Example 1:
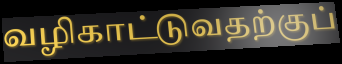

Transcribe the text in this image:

வழிகாட்டுவதற்குப்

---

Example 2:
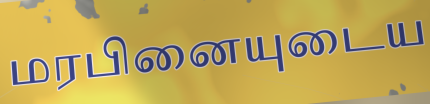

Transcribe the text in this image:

மரபினையுடைய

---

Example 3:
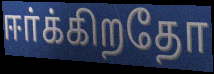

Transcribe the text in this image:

ஈர்க்கிறதோ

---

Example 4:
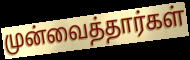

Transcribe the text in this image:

முன்வைத்தார்கள்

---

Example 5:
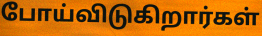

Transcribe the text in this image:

போய்விடுகிறார்கள்